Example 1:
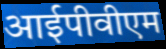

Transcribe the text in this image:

आईपीवीएम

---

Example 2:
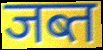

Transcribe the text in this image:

जब्त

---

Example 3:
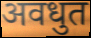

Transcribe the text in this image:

अवधुत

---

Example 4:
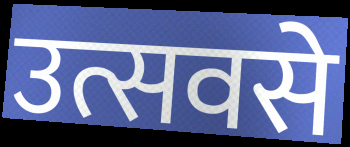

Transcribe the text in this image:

उत्सवसे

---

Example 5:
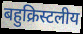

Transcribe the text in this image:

बहुक्रिस्टलीय